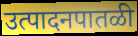
उत्पादनपातळी